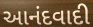
આનંદવાદી